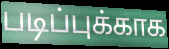
படிப்புக்காக